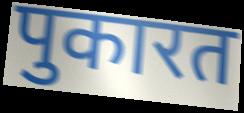
पुकारत